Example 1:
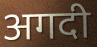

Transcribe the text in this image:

अगदी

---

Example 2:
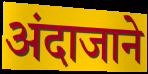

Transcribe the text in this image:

अंदाजाने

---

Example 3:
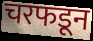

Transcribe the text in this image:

चरफडून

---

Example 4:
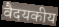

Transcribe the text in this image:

वैदयकीय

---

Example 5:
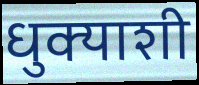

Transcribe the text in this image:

धुक्याशी